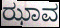
ಝಾವ